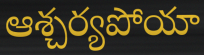
ఆశ్చర్యపోయా